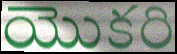
యొకరి